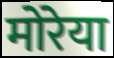
मोरेया